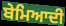
ਬੇਮਿਆਦੀ